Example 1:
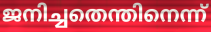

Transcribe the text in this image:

ജനിച്ചതെന്തിനെന്ന്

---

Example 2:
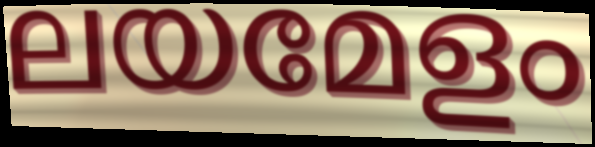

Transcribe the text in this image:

ലയമേളം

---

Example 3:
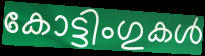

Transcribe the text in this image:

കോട്ടിംഗുകൾ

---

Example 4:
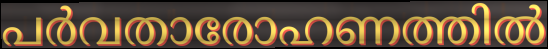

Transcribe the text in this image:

പർവതാരോഹണത്തിൽ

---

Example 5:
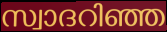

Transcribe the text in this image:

സ്വാദറിഞ്ഞ